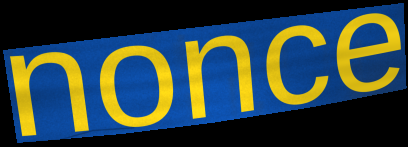
nonce